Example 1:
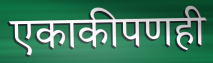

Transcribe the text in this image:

एकाकीपणही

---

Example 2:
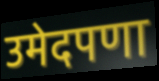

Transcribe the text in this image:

उमेदपणा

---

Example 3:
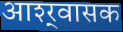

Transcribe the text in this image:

आश्र्वासक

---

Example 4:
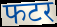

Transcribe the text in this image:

फटर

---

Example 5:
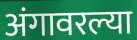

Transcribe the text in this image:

अंगावरल्या